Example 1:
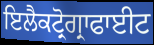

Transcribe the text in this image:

ਇਲੈਕਟ੍ਰੋਗ੍ਰਾਫਾਈਟ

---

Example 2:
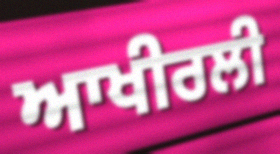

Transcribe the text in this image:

ਆਖੀਰਲੀ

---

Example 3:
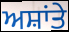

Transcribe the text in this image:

ਅਸ਼ਾਂਤੇ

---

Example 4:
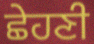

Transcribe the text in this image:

ਛੇਹਣੀ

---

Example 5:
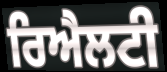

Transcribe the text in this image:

ਰਿਐਲਟੀ